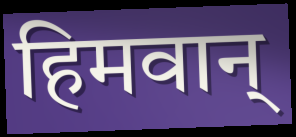
हिमवान्